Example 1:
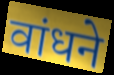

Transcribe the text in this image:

वांधने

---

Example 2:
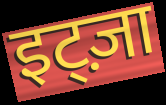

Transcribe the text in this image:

इट्ज़ा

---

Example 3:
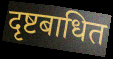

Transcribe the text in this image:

दृष्टबाधित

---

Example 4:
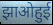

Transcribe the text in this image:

झाओहुई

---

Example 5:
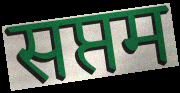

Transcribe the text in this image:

सप्तम